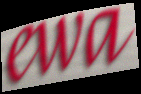
ewa